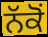
ਨੱਕੋਂ